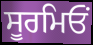
ਸੂਰਮਿਓਂ